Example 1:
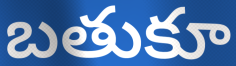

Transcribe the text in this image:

బతుకూ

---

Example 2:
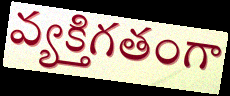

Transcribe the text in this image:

వ్యక్తిగతంగా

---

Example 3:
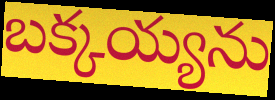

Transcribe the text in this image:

బక్కయ్యను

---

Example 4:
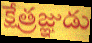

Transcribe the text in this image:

క్షేత్రజ్ఞుడు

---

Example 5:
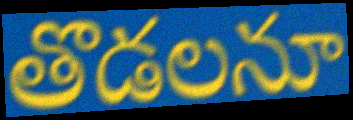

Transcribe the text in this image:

తొడలనూ